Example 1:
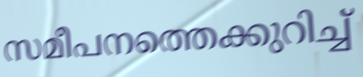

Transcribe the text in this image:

സമീപനത്തെക്കുറിച്ച്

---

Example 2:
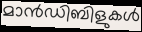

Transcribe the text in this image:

മാൻഡിബിളുകൾ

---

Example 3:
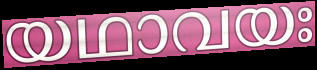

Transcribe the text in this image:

യഥാവയഃ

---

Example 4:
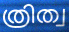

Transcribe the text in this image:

ത്രിത്വ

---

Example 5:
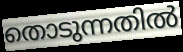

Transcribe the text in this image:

തൊടുന്നതിൽ